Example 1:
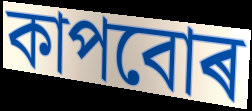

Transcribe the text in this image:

কাপবোৰ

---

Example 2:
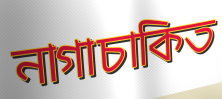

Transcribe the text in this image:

নাগাচাকিত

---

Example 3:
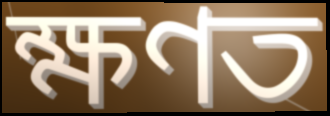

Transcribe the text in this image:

ক্ষণত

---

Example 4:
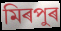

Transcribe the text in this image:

মিৰপুৰ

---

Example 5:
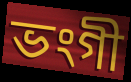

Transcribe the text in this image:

ভংগী